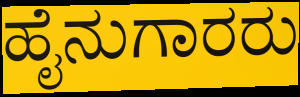
ಹೈನುಗಾರರು